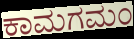
ಕಾಮಗಮಂ